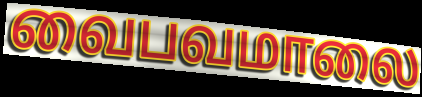
வைபவமாலை